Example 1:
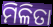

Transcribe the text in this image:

ମିଳିତା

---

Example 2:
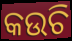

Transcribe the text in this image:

କଉଚି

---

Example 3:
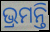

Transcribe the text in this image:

ଭ୍ରମନ୍ତି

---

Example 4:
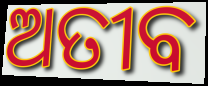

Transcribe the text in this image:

ଅତୀବ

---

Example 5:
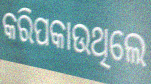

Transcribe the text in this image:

କରିପକାଉଥିଲେ